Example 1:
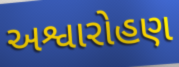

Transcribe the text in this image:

અશ્વારોહણ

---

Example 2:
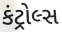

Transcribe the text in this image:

કંટ્રોલ્સ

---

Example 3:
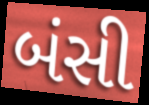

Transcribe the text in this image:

બંસી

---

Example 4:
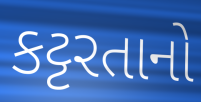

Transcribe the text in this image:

કટ્ટરતાનો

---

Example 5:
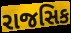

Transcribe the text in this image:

રાજસિક